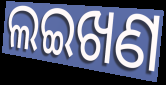
ଲଇଖଣ